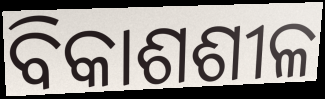
ବିକାଶଶୀଳ